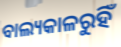
ବାଲ୍ୟକାଳରୁହିଁ